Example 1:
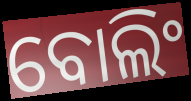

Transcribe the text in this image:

ବୋଲିଂ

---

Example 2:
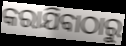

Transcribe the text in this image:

କରାଯିବାଠାରୁ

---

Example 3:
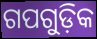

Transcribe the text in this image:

ଗପଗୁଡ଼ିକ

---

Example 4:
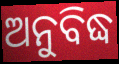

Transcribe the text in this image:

ଅନୁବିଦ୍ଧ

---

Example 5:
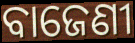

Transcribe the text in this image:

ବାଜେଣୀ